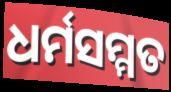
ଧର୍ମସମ୍ମତ